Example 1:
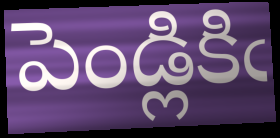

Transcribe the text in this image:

పెండ్లికిఁ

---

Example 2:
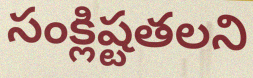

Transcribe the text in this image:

సంక్లిష్టతలని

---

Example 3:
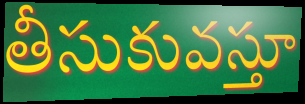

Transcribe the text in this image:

తీసుకువస్తూ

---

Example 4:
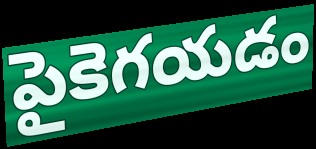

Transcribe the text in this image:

పైకెగయడం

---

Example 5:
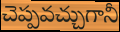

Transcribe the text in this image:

చెప్పవచ్చుగానీ